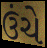
ઉંચે